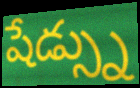
షేడ్స్ను